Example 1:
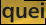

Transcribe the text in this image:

quei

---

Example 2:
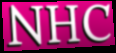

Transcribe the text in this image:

NHC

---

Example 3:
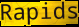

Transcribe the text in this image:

Rapids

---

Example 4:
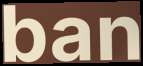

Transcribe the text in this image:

ban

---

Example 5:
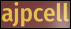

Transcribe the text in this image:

ajpcell